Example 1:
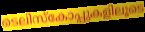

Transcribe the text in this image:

ടെലിസ്കോപ്പുകളിലൂടെ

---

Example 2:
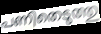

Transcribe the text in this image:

പണിതെടുത്തു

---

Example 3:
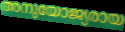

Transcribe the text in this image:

അനുയോജ്യരായ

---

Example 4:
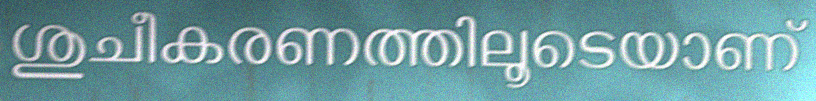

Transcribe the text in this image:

ശുചീകരണത്തിലൂടെയാണ്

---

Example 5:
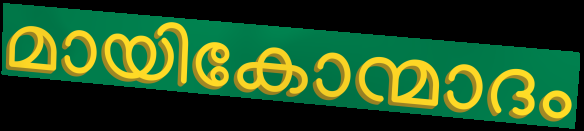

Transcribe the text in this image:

മായികോന്മാദം